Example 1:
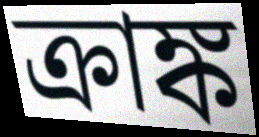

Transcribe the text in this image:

ক্রাঙ্ক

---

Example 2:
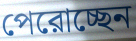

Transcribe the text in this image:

পেরোচ্ছেন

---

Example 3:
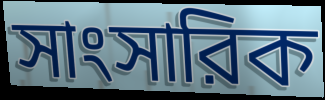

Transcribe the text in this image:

সাংসারিক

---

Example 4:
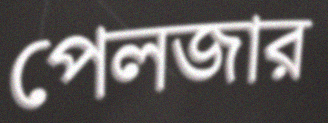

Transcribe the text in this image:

পেলজার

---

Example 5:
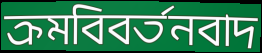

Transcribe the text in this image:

ক্রমবিবর্তনবাদ